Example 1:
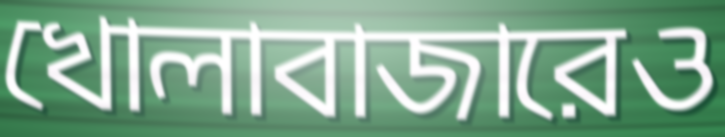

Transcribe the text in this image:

খোলাবাজারেও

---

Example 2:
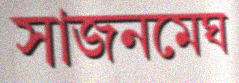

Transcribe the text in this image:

সাজনমেঘ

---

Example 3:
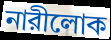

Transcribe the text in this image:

নারীলোক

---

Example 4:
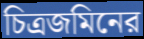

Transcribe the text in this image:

চিত্রজমিনের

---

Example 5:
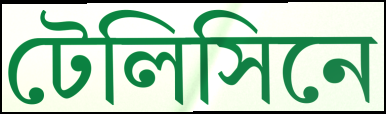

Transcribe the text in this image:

টেলিসিনে